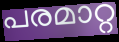
പരമാറ്റ